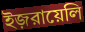
ইজ়রায়েলি